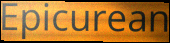
Epicurean